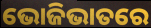
ଭୋଜିଭାତରେ